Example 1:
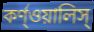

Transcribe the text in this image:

কর্ণ্ওয়ালিস্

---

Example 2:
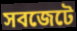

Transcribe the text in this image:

সবজেটে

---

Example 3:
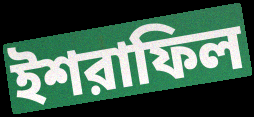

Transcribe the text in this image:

ইশরাফিল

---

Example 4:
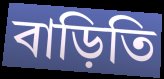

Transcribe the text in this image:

বাড়িতি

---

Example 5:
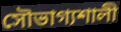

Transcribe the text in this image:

সৌভাগ্যশালী